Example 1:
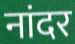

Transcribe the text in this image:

नांदर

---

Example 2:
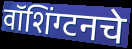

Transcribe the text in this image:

वॉशिंग्टनचे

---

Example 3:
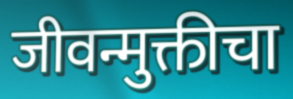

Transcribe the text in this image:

जीवन्मुक्तीचा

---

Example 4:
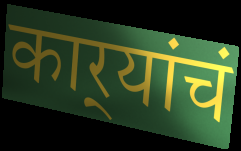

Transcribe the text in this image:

कार्यांचं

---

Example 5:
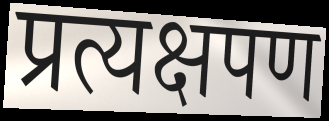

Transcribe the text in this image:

प्रत्यक्षपण